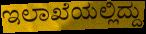
ಇಲಾಖೆಯಲ್ಲಿದ್ದು